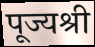
पूज्यश्री